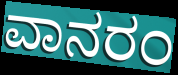
ವಾನರಂ